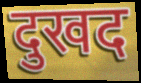
दुखद